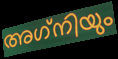
അഗ്‌നിയും